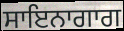
ਸਾਇਨਾਗਾਗ